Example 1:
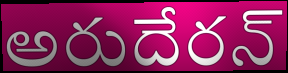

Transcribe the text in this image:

అరుదేరన్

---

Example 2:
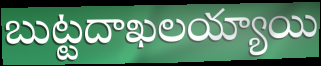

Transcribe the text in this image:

బుట్టదాఖలయ్యాయి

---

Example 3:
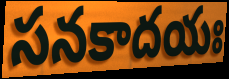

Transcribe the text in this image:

సనకాదయః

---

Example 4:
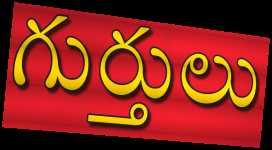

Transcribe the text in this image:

గుర్తులు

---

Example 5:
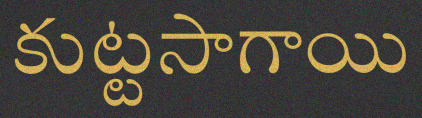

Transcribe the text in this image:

కుట్టసాగాయి